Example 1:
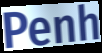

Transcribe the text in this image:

Penh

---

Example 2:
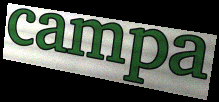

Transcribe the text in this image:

campa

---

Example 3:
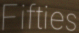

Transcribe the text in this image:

Fifties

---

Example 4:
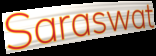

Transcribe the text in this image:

Saraswat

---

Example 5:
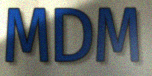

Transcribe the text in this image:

MDM